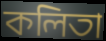
কলিতা